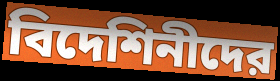
বিদেশিনীদের